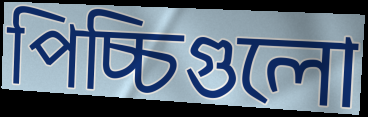
পিচ্চিগুলো